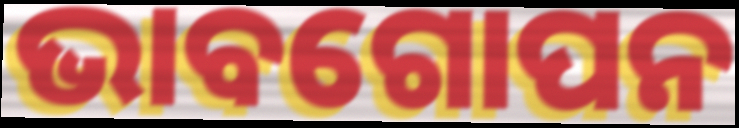
ଭାବଗୋପନ